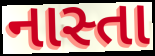
નાસ્તા